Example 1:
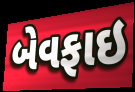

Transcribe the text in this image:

બેવફાઇ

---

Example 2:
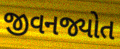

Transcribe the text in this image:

જીવનજ્યોત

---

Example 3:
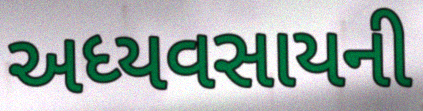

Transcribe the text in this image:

અધ્યવસાયની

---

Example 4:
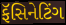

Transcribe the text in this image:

ફૅસિનેટિંગ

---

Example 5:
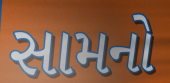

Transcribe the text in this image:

સામનો